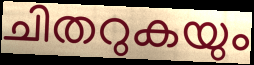
ചിതറുകയും